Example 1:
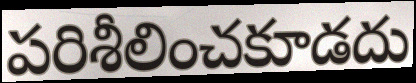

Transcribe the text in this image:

పరిశీలించకూడదు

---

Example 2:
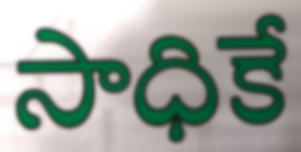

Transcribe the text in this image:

సాధికే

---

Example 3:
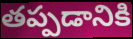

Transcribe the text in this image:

తప్పడానికి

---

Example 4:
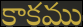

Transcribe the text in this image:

కాకము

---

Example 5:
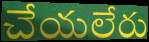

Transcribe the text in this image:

చేయలేరు